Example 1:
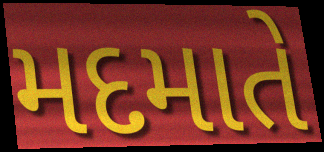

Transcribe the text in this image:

મદમાતે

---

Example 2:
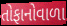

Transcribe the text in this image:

તોફાનોવાળા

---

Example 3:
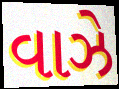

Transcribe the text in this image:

વાઝે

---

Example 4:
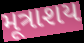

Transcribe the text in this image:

મૂત્રાશય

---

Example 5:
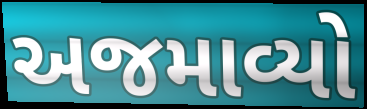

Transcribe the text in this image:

અજમાવ્યો